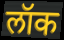
लॉक